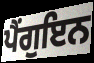
ਪੈਂਗੁਇਨ